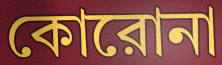
কোরোনা